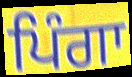
ਪਿੰਗਾ